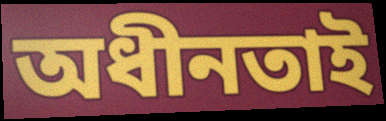
অধীনতাই